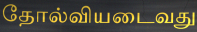
தோல்வியடைவது